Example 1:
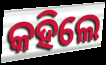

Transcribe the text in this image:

କହିଲେ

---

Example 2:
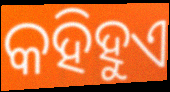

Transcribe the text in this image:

କହିହୁଏ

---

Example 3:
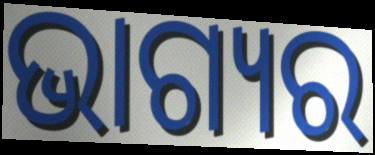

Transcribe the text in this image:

ଭାଗ୍ୟର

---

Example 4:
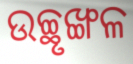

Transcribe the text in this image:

ଉଚ୍ଛୃଙ୍ଖଳ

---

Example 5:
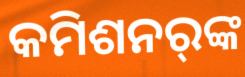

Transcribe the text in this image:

କମିଶନର୍‌ଙ୍କ